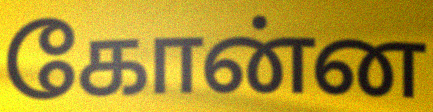
கோன்ன